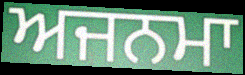
ਅਜਨਮਾ